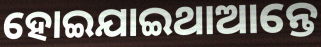
ହୋଇଯାଇଥାଆନ୍ତେ